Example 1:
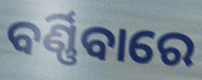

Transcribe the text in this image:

ବର୍ଣ୍ଣିବାରେ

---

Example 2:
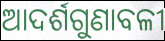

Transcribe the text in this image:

ଆଦର୍ଶଗୁଣାବଳୀ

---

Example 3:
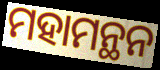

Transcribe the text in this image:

ମହାମନ୍ଥନ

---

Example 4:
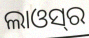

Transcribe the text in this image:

ଲାଓସ୍‌ର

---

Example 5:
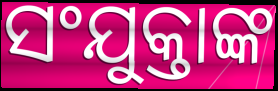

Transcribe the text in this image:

ସଂଯୁକ୍ତାଙ୍କ